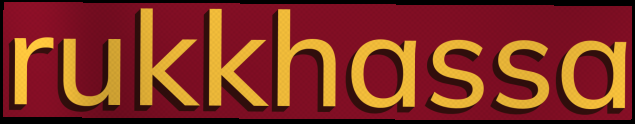
rukkhassa